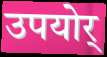
उपयोर्